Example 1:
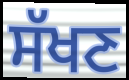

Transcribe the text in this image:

ਸੱਖਣ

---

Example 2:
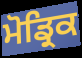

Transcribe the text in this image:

ਮੋਡ੍ਰਿਕ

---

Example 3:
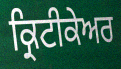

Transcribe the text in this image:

ਕ੍ਰਿਟੀਕੇਅਰ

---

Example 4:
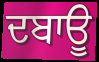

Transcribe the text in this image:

ਦਬਾਊ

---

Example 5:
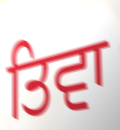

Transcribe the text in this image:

ਤਿਵਾ